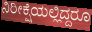
ನಿರೀಕ್ಷೆಯಲ್ಲಿದ್ದರೂ